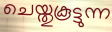
ചെയ്തുകൂട്ടുന്ന